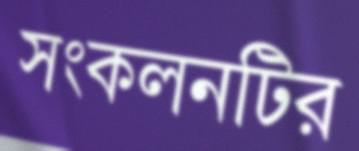
সংকলনটির